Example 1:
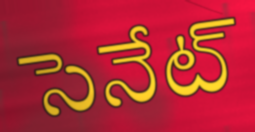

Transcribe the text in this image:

సెనేట్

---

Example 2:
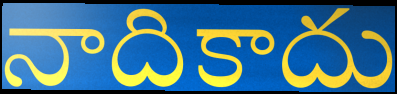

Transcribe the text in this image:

నాదికాదు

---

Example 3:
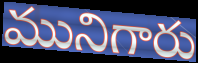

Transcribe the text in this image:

మునిగారు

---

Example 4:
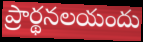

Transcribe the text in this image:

ప్రార్థనలయందు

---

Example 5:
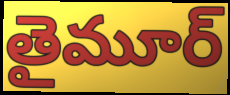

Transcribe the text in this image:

తైమూర్